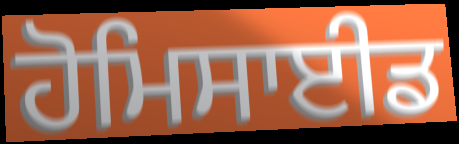
ਹੋਮਿਸਾਈਡ